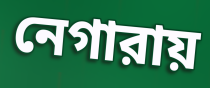
নেগারায়